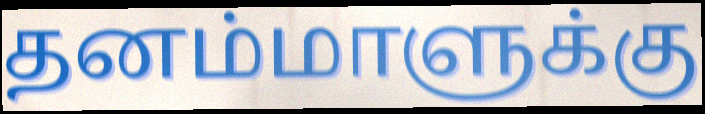
தனம்மாளுக்கு